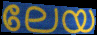
ലേയ